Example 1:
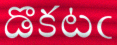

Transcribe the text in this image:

డొకటఁ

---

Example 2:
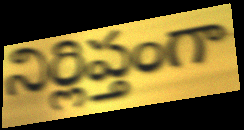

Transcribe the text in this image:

నిర్లిప్తంగా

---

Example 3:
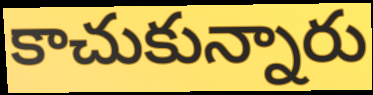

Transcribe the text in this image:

కాచుకున్నారు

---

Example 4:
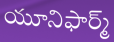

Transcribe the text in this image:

యూనిఫార్మ్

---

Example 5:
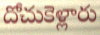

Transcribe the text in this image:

దోచుకెళ్లారు